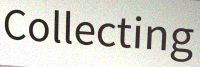
Collecting